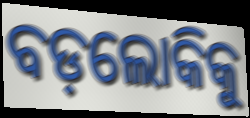
ବଡ଼ଲୋକିକୁ